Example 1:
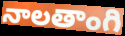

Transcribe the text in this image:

నాలతాంగి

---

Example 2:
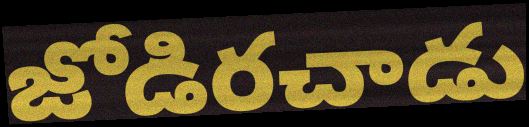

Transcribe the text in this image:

జోడిరచాడు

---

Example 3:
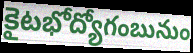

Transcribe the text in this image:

కైటభోద్యోగంబునుం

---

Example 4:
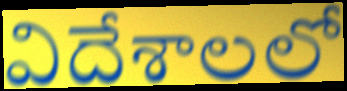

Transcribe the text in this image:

విదేశాలలో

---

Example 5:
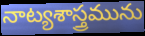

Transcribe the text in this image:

నాట్యశాస్త్రమును